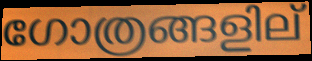
ഗോത്രങ്ങളില്